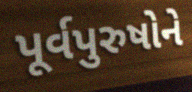
પૂર્વપુરુષોને